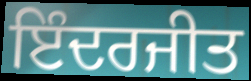
ਇੰਦਰਜੀਤ